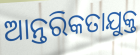
ଆନ୍ତରିକତାଯୁକ୍ତ